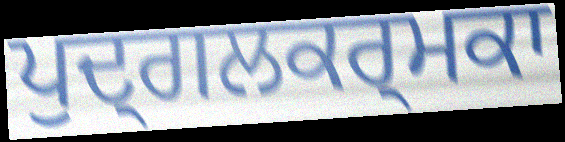
ਪੁਦ੍ਗਲਕਰ੍ਮਕਾ